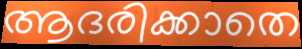
ആദരിക്കാതെ